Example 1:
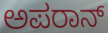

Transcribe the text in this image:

ಅಪರಾನ್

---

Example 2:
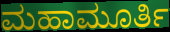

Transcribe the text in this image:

ಮಹಾಮೂರ್ತಿ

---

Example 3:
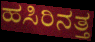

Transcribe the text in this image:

ಹಸಿರಿನತ್ತ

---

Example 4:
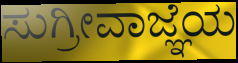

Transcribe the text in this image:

ಸುಗ್ರೀವಾಜ್ಞೆಯ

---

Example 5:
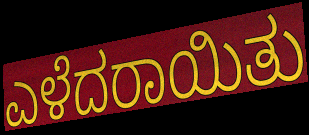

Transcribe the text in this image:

ಎಳೆದರಾಯಿತು